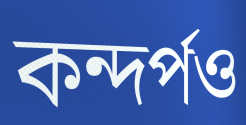
কন্দর্পও